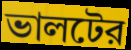
ভালটের